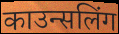
काउन्सलिंग